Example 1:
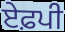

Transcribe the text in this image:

ਏਫ਼ਪੀ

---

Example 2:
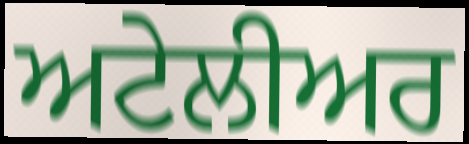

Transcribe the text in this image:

ਅਟੇਲੀਅਰ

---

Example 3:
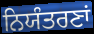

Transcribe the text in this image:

ਨਿਯੰਤਰਣਾਂ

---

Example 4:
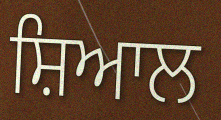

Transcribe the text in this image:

ਸ਼ਿਆਲ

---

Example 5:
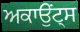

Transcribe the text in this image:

ਅਕਾਉਂਟ੍ਸ